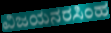
ವಿಜಯನರಸಿಂಹ